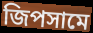
জিপসামে